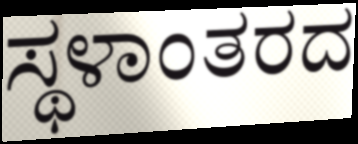
ಸ್ಥಳಾಂತರದ